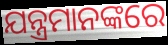
ଯନ୍ତ୍ରମାନଙ୍କରେ